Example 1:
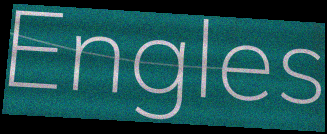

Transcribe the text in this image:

Engles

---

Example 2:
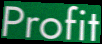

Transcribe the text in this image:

Profit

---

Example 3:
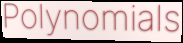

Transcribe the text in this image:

Polynomials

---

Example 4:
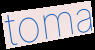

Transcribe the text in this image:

toma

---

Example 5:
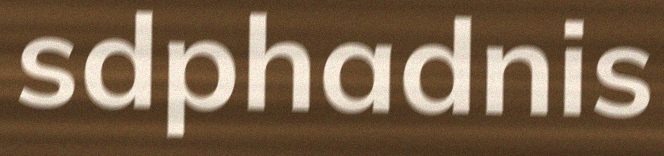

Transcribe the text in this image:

sdphadnis